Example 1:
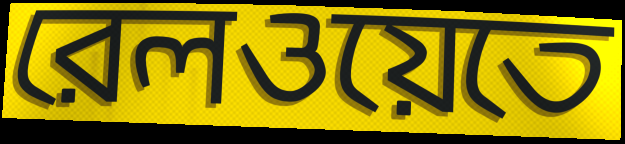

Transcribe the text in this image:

রেলওয়েতে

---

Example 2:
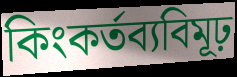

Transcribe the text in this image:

কিংকর্তব্যবিমূঢ়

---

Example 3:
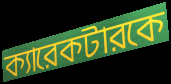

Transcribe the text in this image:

ক্যারেকটারকে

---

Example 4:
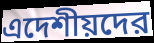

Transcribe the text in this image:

এদেশীয়দের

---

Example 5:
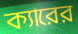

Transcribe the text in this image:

ক্যারের